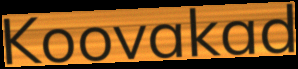
Koovakad